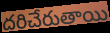
దరిచేరుతాయి